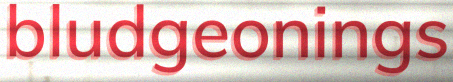
bludgeonings